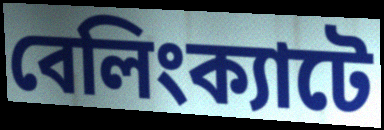
বেলিংক্যাটে